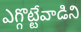
ఎగ్గొట్టేవాడిని